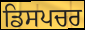
ਡਿਸਪਚਰ